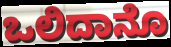
ಒಲಿದಾನೊ